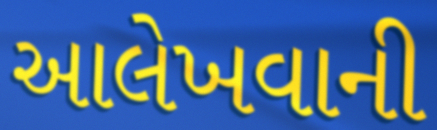
આલેખવાની